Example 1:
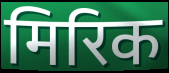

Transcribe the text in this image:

मिरिक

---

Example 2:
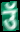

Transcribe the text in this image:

उॅ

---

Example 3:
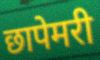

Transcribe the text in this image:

छापेमरी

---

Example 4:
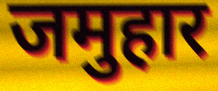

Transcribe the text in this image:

जमुहार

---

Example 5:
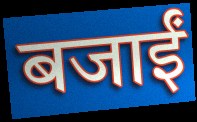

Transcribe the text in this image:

बजाईं